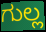
ಗುಲ್ಲ